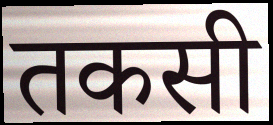
तकसी